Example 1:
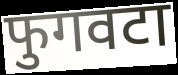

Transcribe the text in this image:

फुगवटा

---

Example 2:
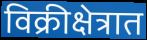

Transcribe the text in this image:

विक्रीक्षेत्रात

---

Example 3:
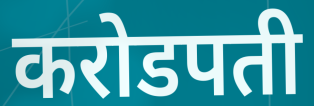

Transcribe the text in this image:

करोडपती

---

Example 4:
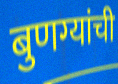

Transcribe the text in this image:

बुणग्यांची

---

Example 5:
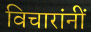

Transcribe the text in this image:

विचारांनीं